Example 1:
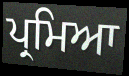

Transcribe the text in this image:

ਪ੍ਰਮਿਆ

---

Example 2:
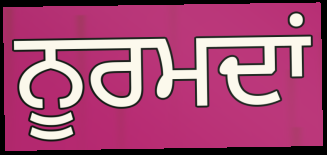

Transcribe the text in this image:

ਨੂਰਮਦਾਂ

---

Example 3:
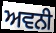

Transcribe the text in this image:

ਅਵਨੀ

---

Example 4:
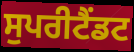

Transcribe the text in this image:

ਸੁਪਰੀਟੈਂਡਟ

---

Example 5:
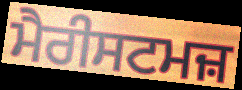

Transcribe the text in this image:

ਮੈਰੀਸਟਮਜ਼